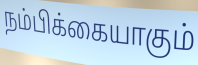
நம்பிக்கையாகும்